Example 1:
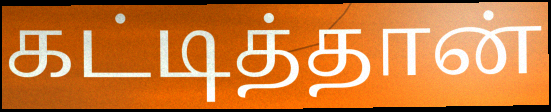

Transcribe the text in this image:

கட்டித்தான்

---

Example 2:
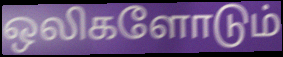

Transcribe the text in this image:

ஒலிகளோடும்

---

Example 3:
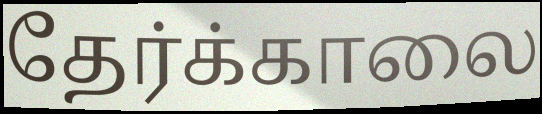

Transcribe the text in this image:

தேர்க்காலை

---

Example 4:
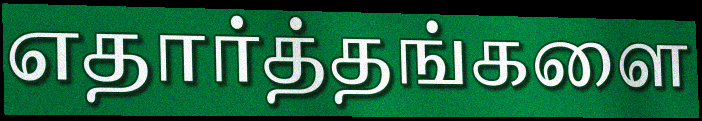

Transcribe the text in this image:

எதார்த்தங்களை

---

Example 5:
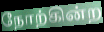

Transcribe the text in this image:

நோற்கின்ற